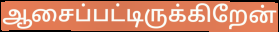
ஆசைப்பட்டிருக்கிறேன்